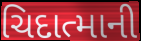
ચિદાત્માની